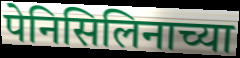
पेनिसिलिनाच्या